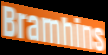
Bramhins